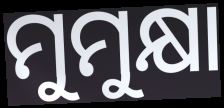
ମୁମୁକ୍ଷା